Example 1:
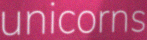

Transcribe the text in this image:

unicorns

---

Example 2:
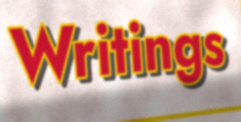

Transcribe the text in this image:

Writings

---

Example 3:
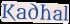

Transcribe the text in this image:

Kadhal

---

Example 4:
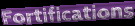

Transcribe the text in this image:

Fortifications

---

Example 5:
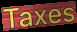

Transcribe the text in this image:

Taxes